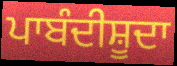
ਪਾਬੰਦੀਸ਼ੂਦਾ